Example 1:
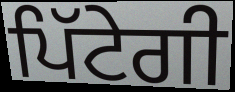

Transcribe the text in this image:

ਪਿੱਟੇਗੀ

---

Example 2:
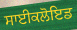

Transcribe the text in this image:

ਸਾਈਕਲੋਇਡ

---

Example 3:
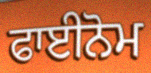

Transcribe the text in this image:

ਫਾਈਨੋਮ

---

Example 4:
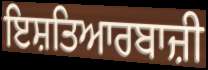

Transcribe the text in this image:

ਇਸ਼ਤਿਆਰਬਾਜ਼ੀ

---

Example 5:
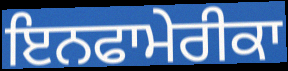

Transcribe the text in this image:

ਇਨਫਾਮੇਰੀਕਾ